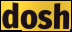
dosh